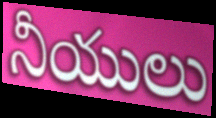
నీయులు